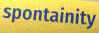
spontainity